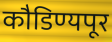
कौडिण्यपूर